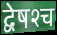
द्वेषश्च